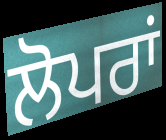
ਲੋਪਰਾਂ